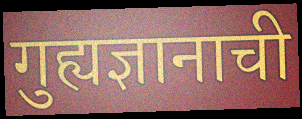
गुह्यज्ञानाची